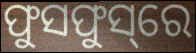
ଫୁସଫୁସ୍‌ରେ